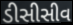
ડીસીસીવ